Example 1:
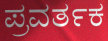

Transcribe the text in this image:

ಪ್ರವರ್ತಕ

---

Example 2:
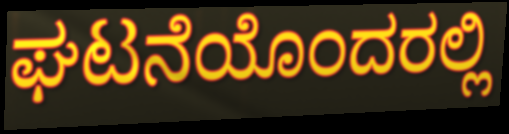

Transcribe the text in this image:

ಘಟನೆಯೊಂದರಲ್ಲಿ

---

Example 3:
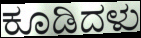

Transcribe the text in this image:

ಕೂಡಿದಳು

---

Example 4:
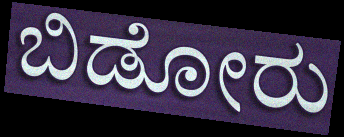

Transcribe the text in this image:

ಬಿಡೋರು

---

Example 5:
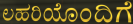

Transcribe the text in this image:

ಲಹರಿಯೊಂದಿಗೆ